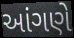
આંગણે